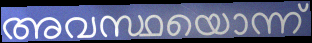
അവസ്ഥയൊന്ന്